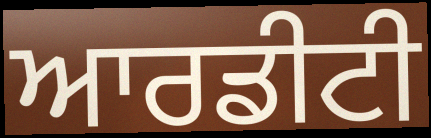
ਆਰਡੀਟੀ